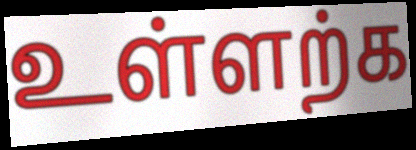
உள்ளற்க